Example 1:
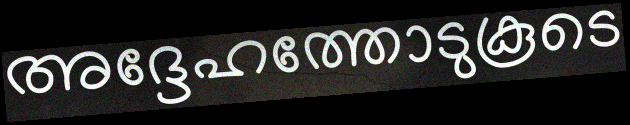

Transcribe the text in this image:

അദ്ദേഹത്തോടുകൂടെ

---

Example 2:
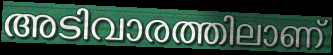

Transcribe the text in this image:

അടിവാരത്തിലാണ്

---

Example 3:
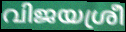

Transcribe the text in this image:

വിജയശ്രീ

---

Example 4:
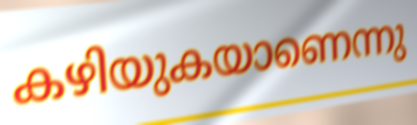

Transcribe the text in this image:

കഴിയുകയാണെന്നു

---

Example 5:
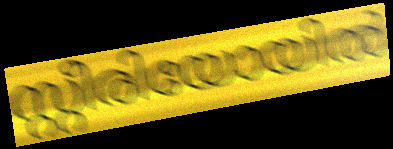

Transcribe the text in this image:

സ്റ്റീരിയോയിൽ